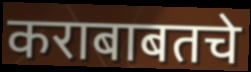
कराबाबतचे